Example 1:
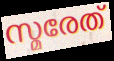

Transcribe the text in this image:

സ്മരേത്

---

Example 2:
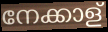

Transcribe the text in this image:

നേക്കാള്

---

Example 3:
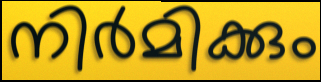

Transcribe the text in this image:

നിർമിക്കും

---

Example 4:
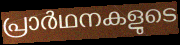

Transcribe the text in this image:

പ്രാർഥനകളുടെ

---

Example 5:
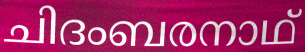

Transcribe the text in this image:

ചിദംബരനാഥ്